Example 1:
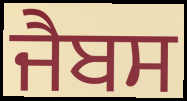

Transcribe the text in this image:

ਜੈਬਸ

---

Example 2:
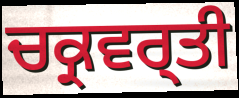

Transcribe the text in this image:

ਚਕ੍ਰਵਰ੍ਤੀ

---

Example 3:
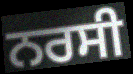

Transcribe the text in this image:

ਨਰਸੀ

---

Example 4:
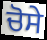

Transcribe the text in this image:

ਚੋਸੇ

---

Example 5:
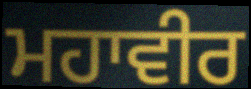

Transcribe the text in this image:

ਮਹਾਵੀਰ